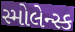
સ્મોલેન્સ્ક